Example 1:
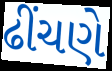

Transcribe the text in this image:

ઢીંચણે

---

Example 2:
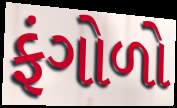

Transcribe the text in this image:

ફંગોળો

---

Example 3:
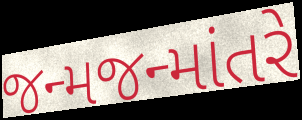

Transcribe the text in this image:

જન્મજન્માંતરે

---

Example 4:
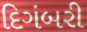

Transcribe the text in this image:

દિગંબરી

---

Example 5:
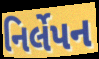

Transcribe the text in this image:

નિર્લેપન